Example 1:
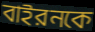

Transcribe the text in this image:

বাইরনকে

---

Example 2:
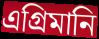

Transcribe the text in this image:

এগ্রিমানি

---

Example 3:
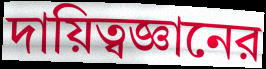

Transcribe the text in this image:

দায়িত্বজ্ঞানের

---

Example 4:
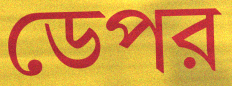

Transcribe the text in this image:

ডেপর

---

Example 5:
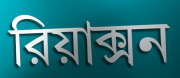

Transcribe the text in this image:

রিয়াক্সন